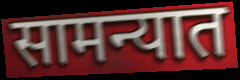
सामन्यात